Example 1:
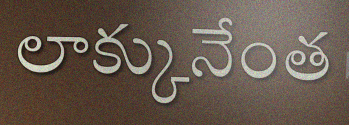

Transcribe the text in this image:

లాక్కునేంత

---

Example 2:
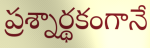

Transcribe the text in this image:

ప్రశ్నార్థకంగానే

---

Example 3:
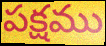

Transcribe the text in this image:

పక్షము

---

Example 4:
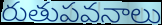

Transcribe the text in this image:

రుతుపవనాలు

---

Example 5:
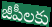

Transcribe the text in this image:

జీపీలకు